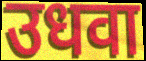
उधवा